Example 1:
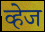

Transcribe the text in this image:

व्हेज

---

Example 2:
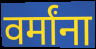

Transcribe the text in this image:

वर्मांना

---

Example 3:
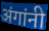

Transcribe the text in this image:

अंगांनी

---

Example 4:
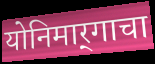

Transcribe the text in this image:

योनिमार्गाचा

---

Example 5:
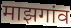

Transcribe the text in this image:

माझगांव